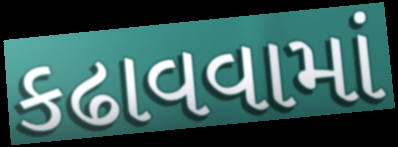
કઢાવવામાં